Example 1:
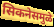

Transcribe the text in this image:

सिकनेसमुळे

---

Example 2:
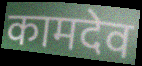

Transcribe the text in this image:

कामदेव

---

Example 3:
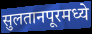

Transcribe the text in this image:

सुलतानपूरमध्ये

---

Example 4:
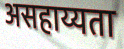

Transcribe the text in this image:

असहाय्यता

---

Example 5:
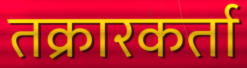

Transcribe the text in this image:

तक्रारकर्ता